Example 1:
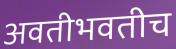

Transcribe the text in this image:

अवतीभवतीच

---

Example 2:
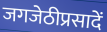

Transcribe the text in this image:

जगजेठीप्रसादें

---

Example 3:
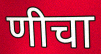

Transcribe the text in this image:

णीचा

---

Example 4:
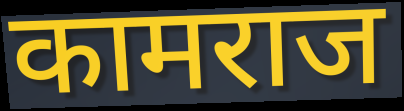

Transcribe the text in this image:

कामराज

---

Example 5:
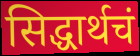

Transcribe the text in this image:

सिद्धार्थचं